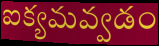
ఐక్యమవ్వడం